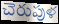
చెరుపుళ